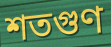
শতগুণ